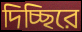
দিচ্ছিরে